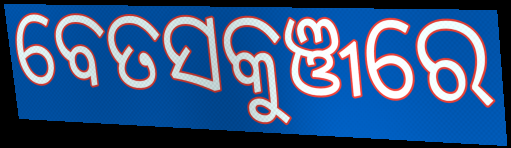
ବେତସକୁଞ୍ଜରେ